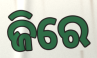
ଜିରେ